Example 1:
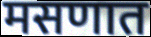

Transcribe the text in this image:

मसणात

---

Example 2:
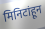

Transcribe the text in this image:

मिनिटांहून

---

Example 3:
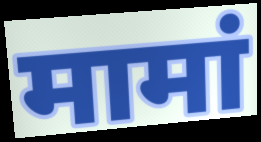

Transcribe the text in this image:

मामां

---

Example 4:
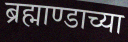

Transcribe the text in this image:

ब्रह्माण्डाच्या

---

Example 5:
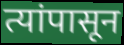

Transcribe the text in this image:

त्यांपासून